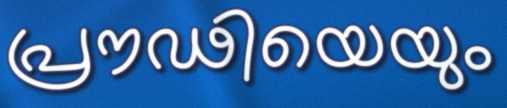
പ്രൗഢിയെയും